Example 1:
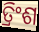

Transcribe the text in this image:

ତ୍ରିଂଶ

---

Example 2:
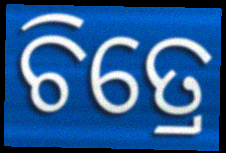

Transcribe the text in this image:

ଚିତ୍ରେ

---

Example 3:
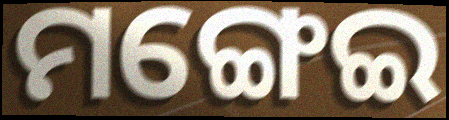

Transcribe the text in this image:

ମଙ୍ଗେଇ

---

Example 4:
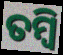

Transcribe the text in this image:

ତମ୍ବି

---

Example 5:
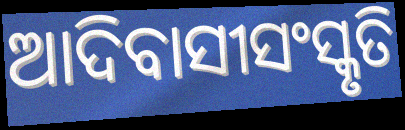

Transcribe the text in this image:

ଆଦିବାସୀସଂସ୍କୃତି